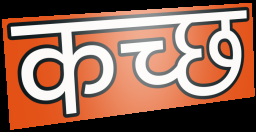
कच्‍छ